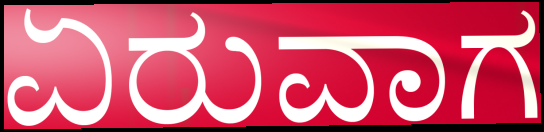
ಏರುವಾಗ